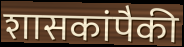
शासकांपैकी